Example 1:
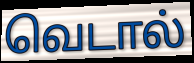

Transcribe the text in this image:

வெடால்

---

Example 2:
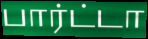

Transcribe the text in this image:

பார்ட்டா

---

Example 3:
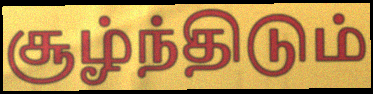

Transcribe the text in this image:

சூழ்ந்திடும்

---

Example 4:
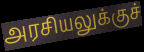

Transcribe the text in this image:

அரசியலுக்குச்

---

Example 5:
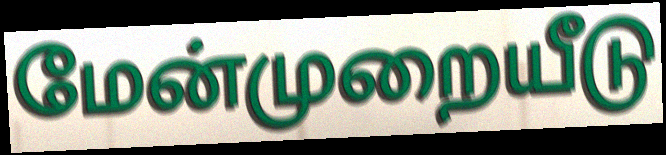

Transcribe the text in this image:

மேன்முறையீடு